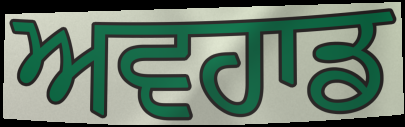
ਅਵਹਾਡ